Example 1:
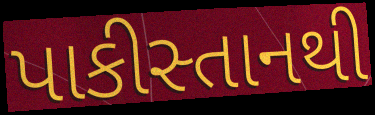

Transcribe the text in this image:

પાકીસ્તાનથી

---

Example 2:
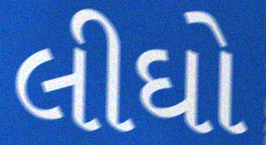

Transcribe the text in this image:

લીઘો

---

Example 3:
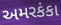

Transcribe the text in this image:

અમરકંકા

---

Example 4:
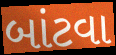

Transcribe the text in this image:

બાંટવા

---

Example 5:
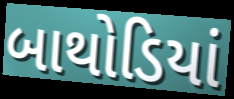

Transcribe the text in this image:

બાથોડિયાં